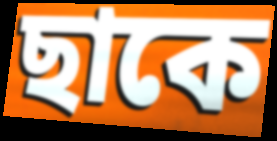
ছাকে